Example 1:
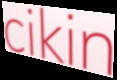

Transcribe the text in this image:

cikin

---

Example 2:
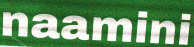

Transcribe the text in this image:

naamini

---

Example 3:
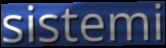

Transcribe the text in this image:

sistemi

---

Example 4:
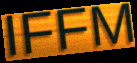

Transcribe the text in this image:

IFFM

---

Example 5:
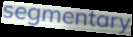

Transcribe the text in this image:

segmentary